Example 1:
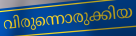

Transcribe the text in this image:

വിരുന്നൊരുക്കിയ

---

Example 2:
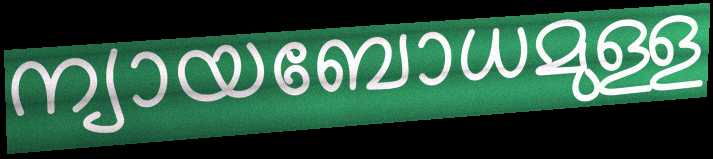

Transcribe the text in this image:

ന്യായബോധമുള്ള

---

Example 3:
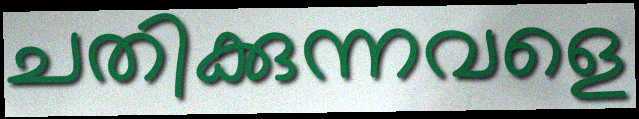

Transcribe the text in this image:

ചതിക്കുന്നവളെ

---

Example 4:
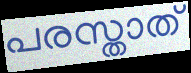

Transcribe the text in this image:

പരസ്താത്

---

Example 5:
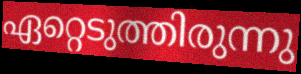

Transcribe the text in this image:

ഏറ്റെടുത്തിരുന്നു